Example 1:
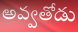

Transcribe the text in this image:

అవ్వతోడు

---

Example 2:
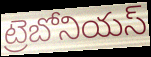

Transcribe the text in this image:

ట్రెబోనియస్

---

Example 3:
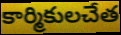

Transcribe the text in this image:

కార్మికులచేత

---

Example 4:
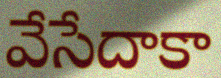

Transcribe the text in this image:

వేసేదాకా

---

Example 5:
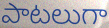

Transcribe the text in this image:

పాటలుగా